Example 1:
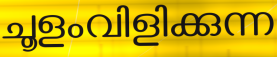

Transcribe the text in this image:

ചൂളംവിളിക്കുന്ന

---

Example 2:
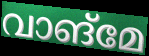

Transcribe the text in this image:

വാങ്മേ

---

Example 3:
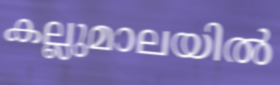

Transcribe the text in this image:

കല്ലുമാലയിൽ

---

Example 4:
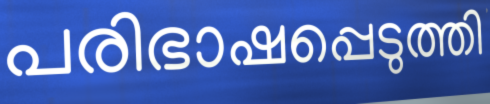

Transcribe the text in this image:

പരിഭാഷപ്പെടുത്തി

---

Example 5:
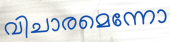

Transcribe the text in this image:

വിചാരമെന്നോ